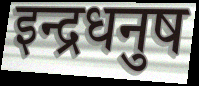
इन्‍द्रधनुष